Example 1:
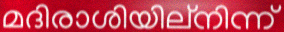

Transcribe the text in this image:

മദിരാശിയില്നിന്ന്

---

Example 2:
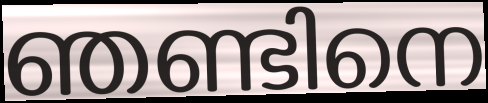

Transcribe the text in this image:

ഞണ്ടിനെ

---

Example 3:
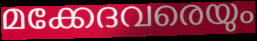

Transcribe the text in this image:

മക്കേദവരെയും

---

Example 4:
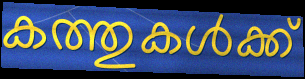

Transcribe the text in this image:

കത്തുകൾക്ക്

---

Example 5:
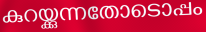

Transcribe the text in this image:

കുറയ്ക്കുന്നതോടൊപ്പം